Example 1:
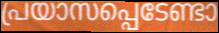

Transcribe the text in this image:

പ്രയാസപ്പെടേണ്ടാ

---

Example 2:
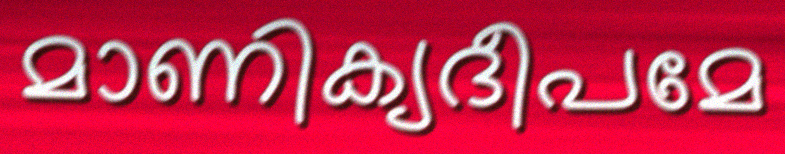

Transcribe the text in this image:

മാണിക്യദീപമേ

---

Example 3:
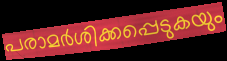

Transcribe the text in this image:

പരാമർശിക്കപ്പെടുകയും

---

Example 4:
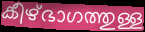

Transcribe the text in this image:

കീഴ്ഭാഗത്തുള്ള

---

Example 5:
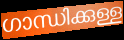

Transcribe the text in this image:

ഗാന്ധിക്കുള്ള